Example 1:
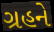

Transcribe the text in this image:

ગ્રહને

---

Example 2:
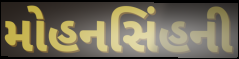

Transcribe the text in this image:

મોહનસિંહની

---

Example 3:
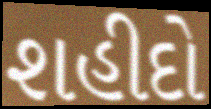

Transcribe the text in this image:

શહીદો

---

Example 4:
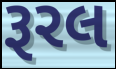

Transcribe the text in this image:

રૂરલ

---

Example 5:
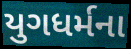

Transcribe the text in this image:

યુગધર્મના